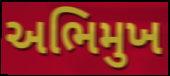
અભિમુખ